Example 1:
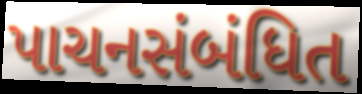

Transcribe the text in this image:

પાચનસંબંધિત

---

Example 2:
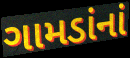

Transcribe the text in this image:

ગામડાંનાં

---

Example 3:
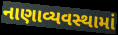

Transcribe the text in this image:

નાણાવ્યવસ્થામાં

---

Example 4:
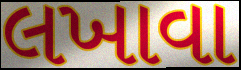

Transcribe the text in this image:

લખાવા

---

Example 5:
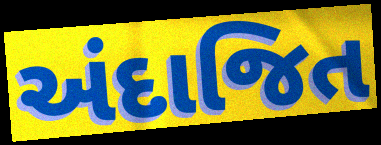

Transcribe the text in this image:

અંદાજિત